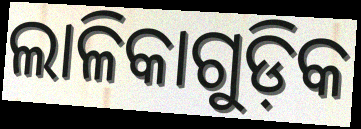
ଲାଳିକାଗୁଡ଼ିକ